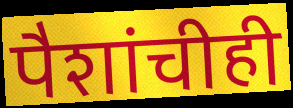
पैशांचीही